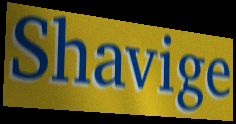
Shavige